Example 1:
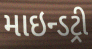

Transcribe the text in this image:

માઇન્ડટ્રી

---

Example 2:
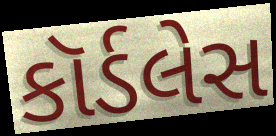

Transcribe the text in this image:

કૉર્ડલેસ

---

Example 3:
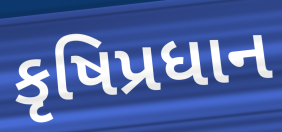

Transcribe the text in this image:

કૃષિપ્રધાન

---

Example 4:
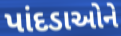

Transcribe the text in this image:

પાંદડાઓને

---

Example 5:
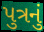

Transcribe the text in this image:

પુત્રનું